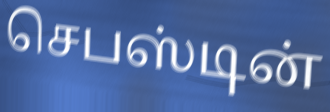
செபஸ்டின்